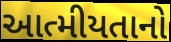
આત્મીયતાનો